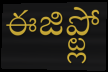
ఈజిప్ట్లో